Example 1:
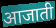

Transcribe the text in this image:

आजाती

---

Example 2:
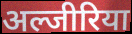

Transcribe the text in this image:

अल्जीरिया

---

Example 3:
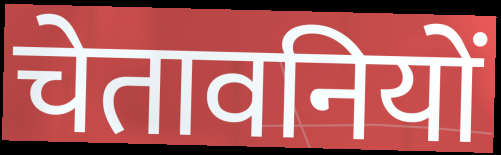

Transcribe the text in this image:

चेतावनियों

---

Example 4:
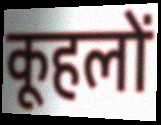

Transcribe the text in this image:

कूहलों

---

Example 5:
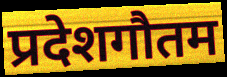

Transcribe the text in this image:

प्रदेशगौतम